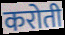
करोती